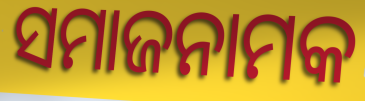
ସମାଜନାମକ